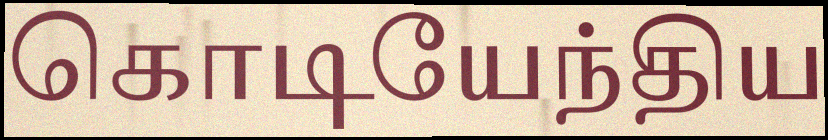
கொடியேந்திய